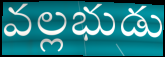
వల్లభుడు